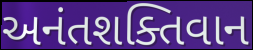
અનંતશક્તિવાન